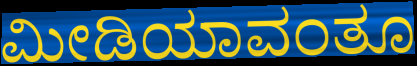
ಮೀಡಿಯಾವಂತೂ